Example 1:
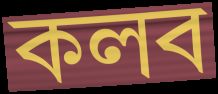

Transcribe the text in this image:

কলব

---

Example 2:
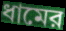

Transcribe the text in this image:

ধামের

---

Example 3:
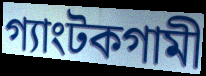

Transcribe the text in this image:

গ্যাংটকগামী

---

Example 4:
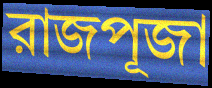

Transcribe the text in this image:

রাজপূজা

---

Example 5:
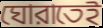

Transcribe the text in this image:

ঘোরাতেই